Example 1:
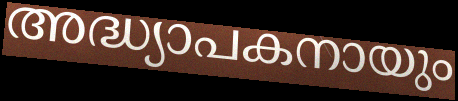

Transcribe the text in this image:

അദ്ധ്യാപകനായും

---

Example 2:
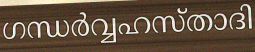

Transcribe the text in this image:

ഗന്ധർവ്വഹസ്താദി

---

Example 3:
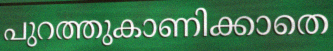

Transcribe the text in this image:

പുറത്തുകാണിക്കാതെ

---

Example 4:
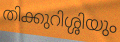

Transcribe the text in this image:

തിക്കുറിശ്ശിയും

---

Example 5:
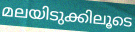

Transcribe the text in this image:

മലയിടുക്കിലൂടെ